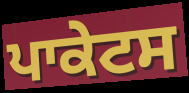
ਪਾਕੇਟਸ